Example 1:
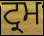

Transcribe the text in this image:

ਟ੍ਰਮ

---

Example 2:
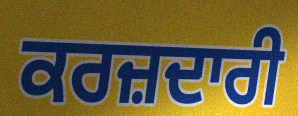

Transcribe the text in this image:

ਕਰਜ਼ਦਾਰੀ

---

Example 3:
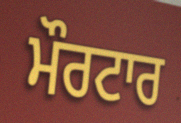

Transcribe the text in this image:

ਮੌਰਟਾਰ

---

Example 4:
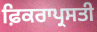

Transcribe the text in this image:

ਫ਼ਿਕਰਾਪ੍ਰਸਤੀ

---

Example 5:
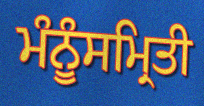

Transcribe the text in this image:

ਮੰਨੂੰਸਮ੍ਰਿਤੀ